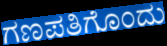
ಗಣಪತಿಗೊಂದು